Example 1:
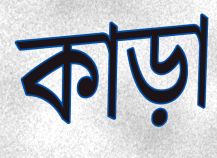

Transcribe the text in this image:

কাড়া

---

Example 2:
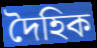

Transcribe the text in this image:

দৈহিক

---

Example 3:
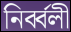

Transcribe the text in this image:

নিৰ্ব্বলী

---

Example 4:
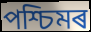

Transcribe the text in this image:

পশ্চিমৰ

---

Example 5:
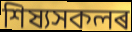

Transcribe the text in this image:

শিষ্যসকলৰ